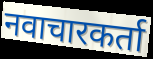
नवाचारकर्ता